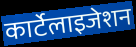
कार्टेलाइजेशन